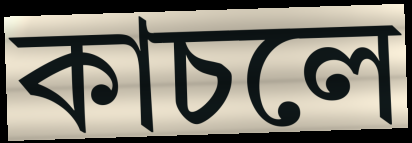
কাচলে